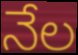
నేల